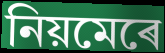
নিয়মেৰে